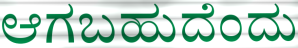
ಆಗಬಹುದೆಂದು